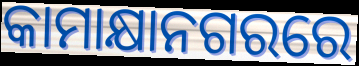
କାମାକ୍ଷାନଗରରେ